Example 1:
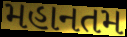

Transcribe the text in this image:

મહાનતમ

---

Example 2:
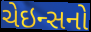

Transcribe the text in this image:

ચેઇન્સનો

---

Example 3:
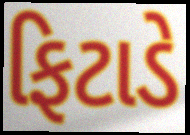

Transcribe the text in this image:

ફિટાડે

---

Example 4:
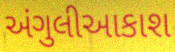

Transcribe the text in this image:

અંગુલીઆકાશ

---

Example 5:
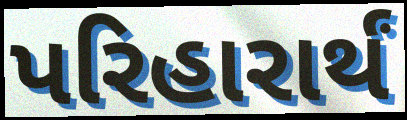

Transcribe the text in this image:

પરિહારાર્થં